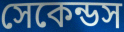
সেকেন্ডস